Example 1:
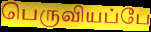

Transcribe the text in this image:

பெருவியப்பே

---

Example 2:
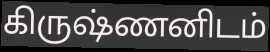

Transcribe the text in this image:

கிருஷ்ணனிடம்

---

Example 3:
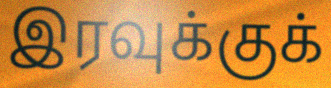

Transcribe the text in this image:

இரவுக்குக்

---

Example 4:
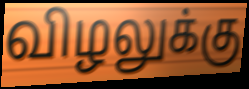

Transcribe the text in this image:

விழலுக்கு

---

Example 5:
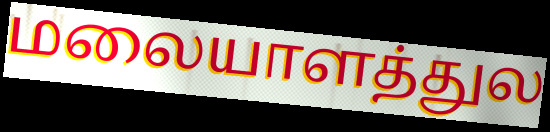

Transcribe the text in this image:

மலையாளத்துல